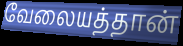
வேலையத்தான்